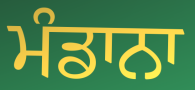
ਮੰਡਾਨਾ